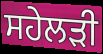
ਸਹੇਲੜੀ